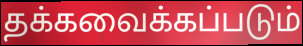
தக்கவைக்கப்படும்